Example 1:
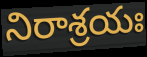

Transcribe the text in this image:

నిరాశ్రయః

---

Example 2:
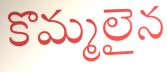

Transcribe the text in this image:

కొమ్మలైన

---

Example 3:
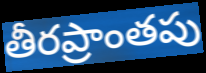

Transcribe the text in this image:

తీరప్రాంతపు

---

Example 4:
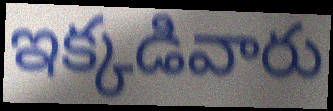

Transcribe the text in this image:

ఇక్కడివారు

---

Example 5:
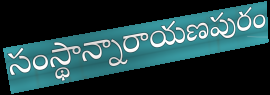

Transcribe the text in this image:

సంస్థాన్నారాయణపురం